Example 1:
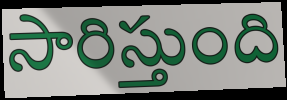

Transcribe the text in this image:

సారిస్తుంది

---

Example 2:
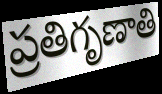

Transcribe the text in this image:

ప్రతిగృణాతి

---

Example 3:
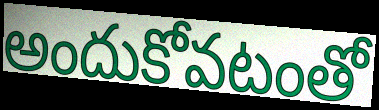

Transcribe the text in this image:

అందుకోవటంతో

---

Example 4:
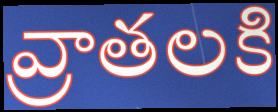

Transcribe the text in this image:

వ్రాతలకి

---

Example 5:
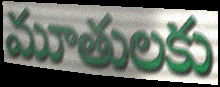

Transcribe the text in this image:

మూతులకు